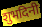
शुभदिनी